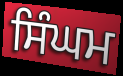
ਸਿੰਘਮ